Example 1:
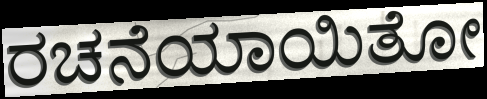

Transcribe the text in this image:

ರಚನೆಯಾಯಿತೋ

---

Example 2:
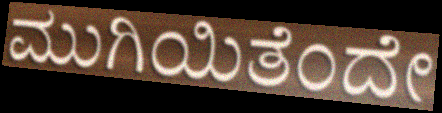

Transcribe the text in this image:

ಮುಗಿಯಿತೆಂದೇ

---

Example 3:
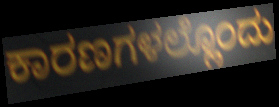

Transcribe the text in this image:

ಕಾರಣಗಳಲ್ಲೊಂದು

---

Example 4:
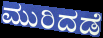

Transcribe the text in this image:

ಮುರಿದಡೆ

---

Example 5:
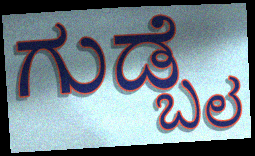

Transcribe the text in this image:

ಗುಡ್ಬೈ